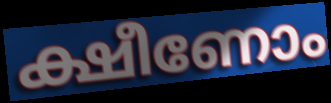
ക്ഷീണോം